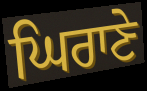
ਘਿਰਾਣੇ